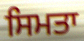
ਸਿਮਤਾ